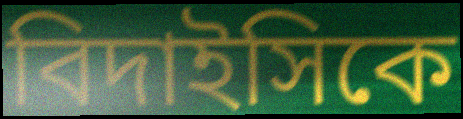
বিদাইসিকে